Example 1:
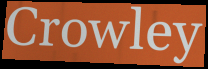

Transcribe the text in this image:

Crowley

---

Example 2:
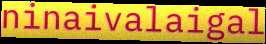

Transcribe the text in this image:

ninaivalaigal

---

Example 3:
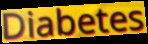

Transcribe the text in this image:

Diabetes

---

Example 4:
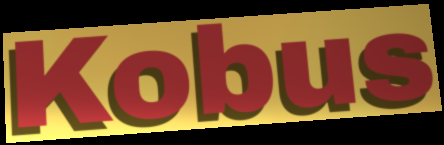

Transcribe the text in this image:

Kobus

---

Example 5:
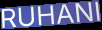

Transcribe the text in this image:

RUHANI